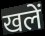
खलें